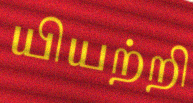
யியற்றி